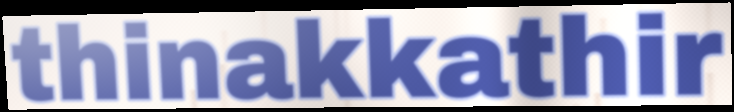
thinakkathir